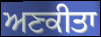
ਅਣਕੀਤਾ